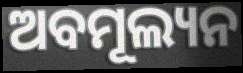
ଅବମୂଲ୍ୟନ